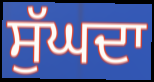
ਸੁੱਘਦਾ